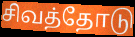
சிவத்தோடு